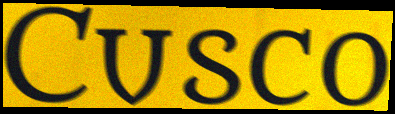
Cusco